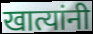
खात्यांनी